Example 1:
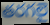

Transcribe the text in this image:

తరగలై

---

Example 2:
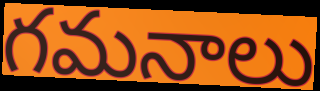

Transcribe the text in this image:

గమనాలు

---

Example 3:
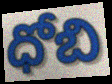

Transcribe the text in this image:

ధోబి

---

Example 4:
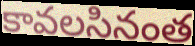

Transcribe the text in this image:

కావలసినంత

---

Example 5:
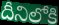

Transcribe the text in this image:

దీనిలోకి